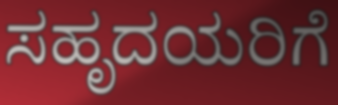
ಸಹೃದಯರಿಗೆ